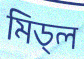
মিড্‌ল